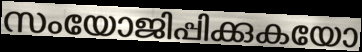
സംയോജിപ്പിക്കുകയോ